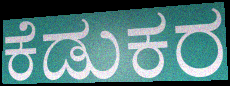
ಕೆಡುಕರ